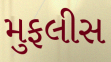
મુફલીસ